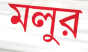
মলুর